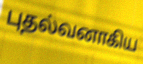
புதல்வனாகிய